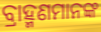
ବ୍ରାହ୍ମଣମାନଙ୍କ